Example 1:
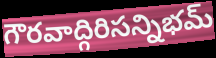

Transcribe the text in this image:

గౌరవాద్గిరిసన్నిభమ్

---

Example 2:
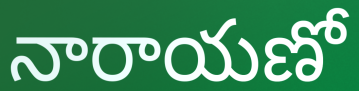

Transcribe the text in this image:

నారాయణో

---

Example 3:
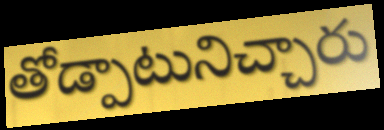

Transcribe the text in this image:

తోడ్పాటునిచ్చారు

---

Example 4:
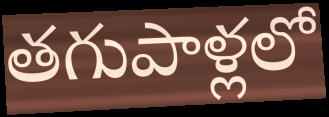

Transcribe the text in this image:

తగుపాళ్లలో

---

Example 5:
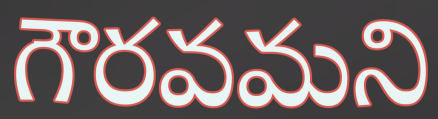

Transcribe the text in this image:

గౌరవమని